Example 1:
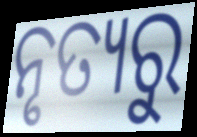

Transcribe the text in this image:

ନୃତ୍ୟରୁ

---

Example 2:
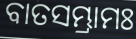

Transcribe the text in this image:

ବାତସମ୍ଭ୍ରାମଃ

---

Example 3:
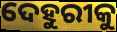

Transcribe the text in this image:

ଦେହୁରୀକୁ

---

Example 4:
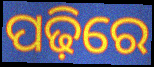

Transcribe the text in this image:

ପଢ଼ିରେ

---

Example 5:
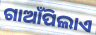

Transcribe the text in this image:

ଗାଆଁପିଲାଏ